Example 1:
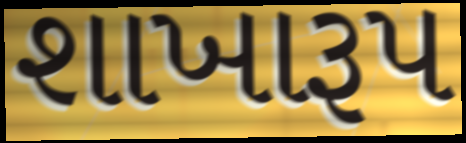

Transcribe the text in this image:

શાખારૂપ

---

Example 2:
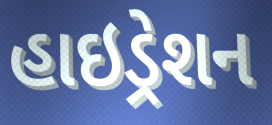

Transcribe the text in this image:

હાઇડ્રેશન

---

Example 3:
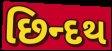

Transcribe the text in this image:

છિન્દથ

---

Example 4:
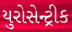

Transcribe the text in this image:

યુરોસેન્ટ્રીક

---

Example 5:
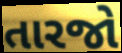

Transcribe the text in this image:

તારજો